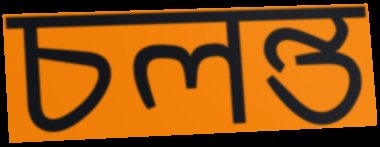
চলন্ত